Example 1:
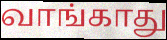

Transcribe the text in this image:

வாங்காது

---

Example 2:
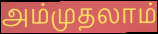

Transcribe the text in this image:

அம்முதலாம்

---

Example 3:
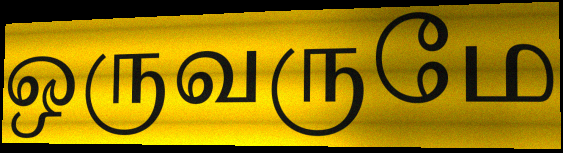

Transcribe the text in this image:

ஒருவருமே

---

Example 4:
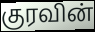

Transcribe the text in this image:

குரவின்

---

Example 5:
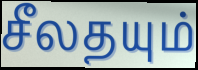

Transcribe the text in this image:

சீலதயும்